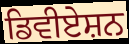
ਡਿਵੀਏਸ਼ਨ